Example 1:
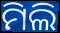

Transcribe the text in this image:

ମିଲି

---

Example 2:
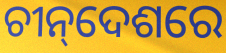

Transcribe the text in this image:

ଚୀନ୍‌ଦେଶରେ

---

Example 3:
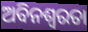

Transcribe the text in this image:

ଅବିନଶ୍ୱରତା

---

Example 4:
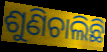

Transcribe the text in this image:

ଶୁଣିଚାଲିଛି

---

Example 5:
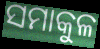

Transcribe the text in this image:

ସମାକୁଳ